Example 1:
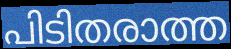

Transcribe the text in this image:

പിടിതരാത്ത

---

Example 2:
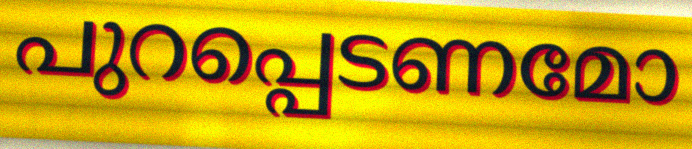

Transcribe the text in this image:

പുറപ്പെടണമോ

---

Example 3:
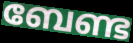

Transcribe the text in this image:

ബേണ്ട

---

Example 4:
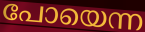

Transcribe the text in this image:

പോയെന്ന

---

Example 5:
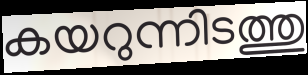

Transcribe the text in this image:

കയറുന്നിടത്തു